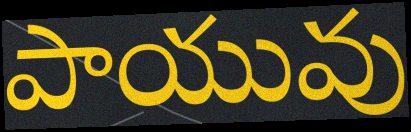
పాయువు